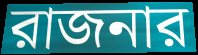
রাজনার